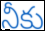
నీకు